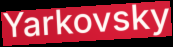
Yarkovsky